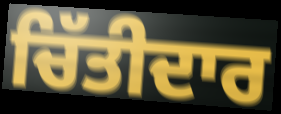
ਚਿੱਤੀਦਾਰ